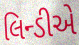
લિન્ડીએ